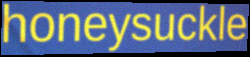
honeysuckle